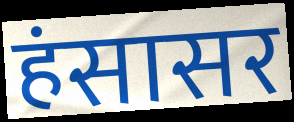
हंसासर